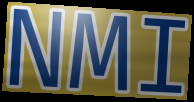
NMI